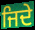
ਜਿਦੇ